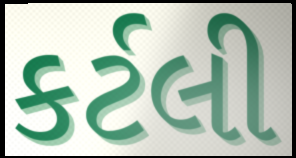
કર્ટલી